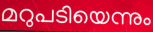
മറുപടിയെന്നും